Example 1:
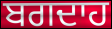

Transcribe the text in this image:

ਬਗਦਾਹ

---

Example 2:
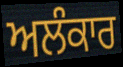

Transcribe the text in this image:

ਅਲੰਕਾਰ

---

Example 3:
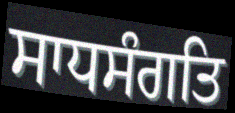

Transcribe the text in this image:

ਸਾਧਸੰਗਤਿ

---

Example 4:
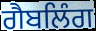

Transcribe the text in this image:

ਗੈਬਲਿੰਗ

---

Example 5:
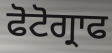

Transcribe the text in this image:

ਫੋਟੋਗ੍ਰਾਫ